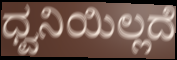
ಧ್ವನಿಯಿಲ್ಲದೆ